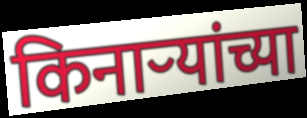
किनाऱ्यांच्या